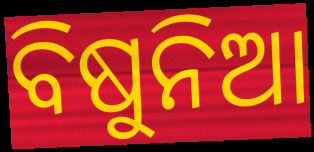
ବିଷୁନିଆ